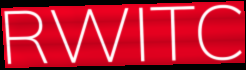
RWITC